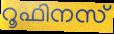
റൂഫിനസ്